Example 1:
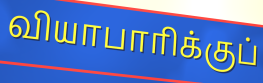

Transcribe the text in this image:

வியாபாரிக்குப்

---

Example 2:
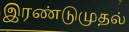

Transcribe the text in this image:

இரண்டுமுதல்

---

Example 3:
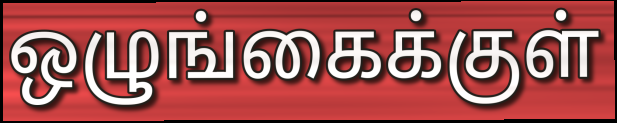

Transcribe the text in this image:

ஒழுங்கைக்குள்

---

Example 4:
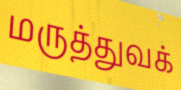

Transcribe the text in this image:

மருத்துவக்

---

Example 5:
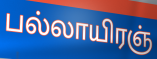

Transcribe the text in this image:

பல்லாயிரஞ்